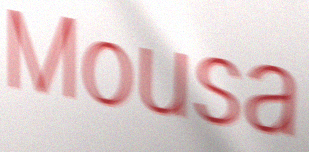
Mousa